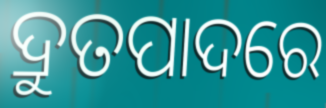
ଦ୍ରୁତପାଦରେ